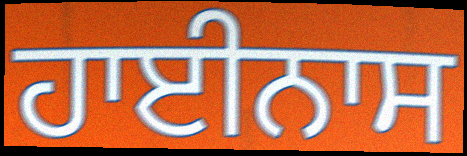
ਹਾਈਨਾਸ